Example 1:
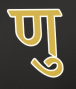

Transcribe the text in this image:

णु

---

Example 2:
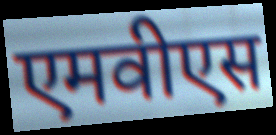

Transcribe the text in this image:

एमवीएस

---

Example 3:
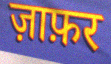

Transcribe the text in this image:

ज़ाफ़र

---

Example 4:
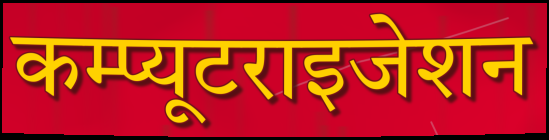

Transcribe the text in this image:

कम्प्यूटराइजेशन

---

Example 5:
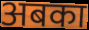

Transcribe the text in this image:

अबका